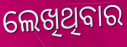
ଲେଖିଥିବାର